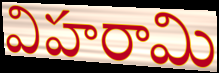
విహరామి